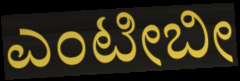
ಎಂಟೀಬೀ